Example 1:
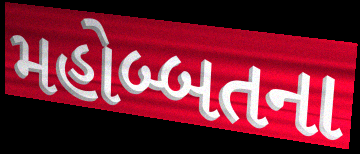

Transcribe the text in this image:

મહોબ્બતના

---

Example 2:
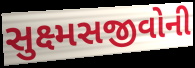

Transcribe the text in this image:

સુક્ષ્મસજીવોની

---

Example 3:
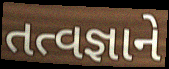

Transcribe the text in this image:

તત્વજ્ઞાને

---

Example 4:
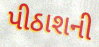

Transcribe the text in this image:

પીઠાશની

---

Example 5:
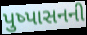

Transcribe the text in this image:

પુષ્પાસનની